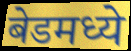
बेडमध्ये